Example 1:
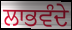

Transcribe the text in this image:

ਲਾਭਵੰਦੇ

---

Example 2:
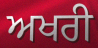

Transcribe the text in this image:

ਅਖਰੀ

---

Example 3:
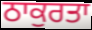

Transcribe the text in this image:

ਠਾਕੁਰਤਾ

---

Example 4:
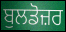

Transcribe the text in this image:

ਬੁਲਡੋਜ਼ਰ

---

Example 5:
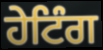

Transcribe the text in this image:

ਹੇਟਿੰਗ